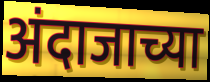
अंदाजाच्या